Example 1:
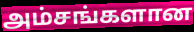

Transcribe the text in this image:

அம்சங்களான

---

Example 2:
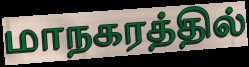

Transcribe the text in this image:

மாநகரத்தில்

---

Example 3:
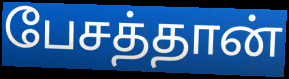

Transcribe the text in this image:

பேசத்தான்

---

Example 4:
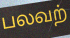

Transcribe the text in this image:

பலவற்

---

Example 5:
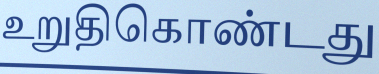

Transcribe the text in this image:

உறுதிகொண்டது